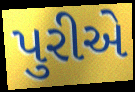
પુરીએ